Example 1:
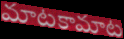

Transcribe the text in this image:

మాటకామాట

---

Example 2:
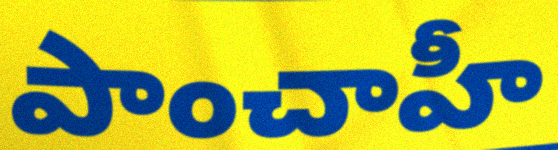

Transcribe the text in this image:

పాంచాహీ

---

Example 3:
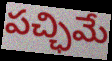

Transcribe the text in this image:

పచ్ఛిమే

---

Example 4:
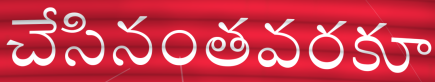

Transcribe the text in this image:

చేసినంతవరకూ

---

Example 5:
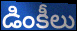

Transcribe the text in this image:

డింకీలు